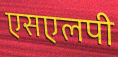
एसएलपी